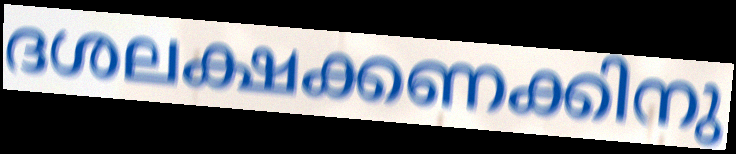
ദശലക്ഷക്കണക്കിനു